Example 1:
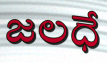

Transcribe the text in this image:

జలధే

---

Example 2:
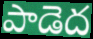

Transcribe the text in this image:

పాడెద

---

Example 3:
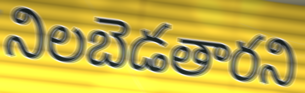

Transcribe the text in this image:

నిలబెడతారని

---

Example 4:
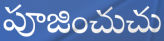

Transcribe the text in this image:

పూజించుచు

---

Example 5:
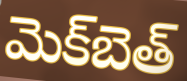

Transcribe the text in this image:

మెక్‌బెత్